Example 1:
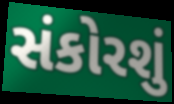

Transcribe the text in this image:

સંકોરશું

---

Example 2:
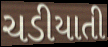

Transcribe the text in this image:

ચડીયાતી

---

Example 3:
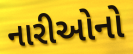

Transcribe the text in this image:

નારીઓનો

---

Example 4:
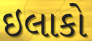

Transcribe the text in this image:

ઇલાકો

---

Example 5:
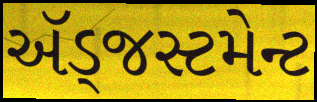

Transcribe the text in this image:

ઍડ્જસ્ટમેન્ટ